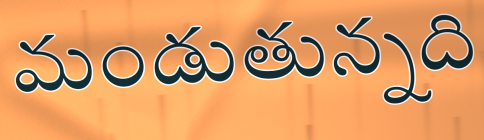
మండుతున్నది